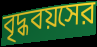
বৃদ্ধবয়সের